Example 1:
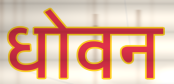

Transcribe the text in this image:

धोवन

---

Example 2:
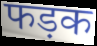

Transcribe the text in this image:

फड़क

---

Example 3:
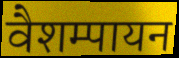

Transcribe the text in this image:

वैशम्पायन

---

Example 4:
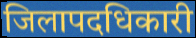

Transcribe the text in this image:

जिलापदधिकारी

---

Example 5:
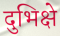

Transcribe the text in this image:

दुभिक्षे